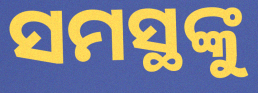
ସମସ୍ଥଙ୍କୁ